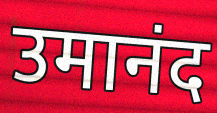
उमानंद